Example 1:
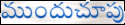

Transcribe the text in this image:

ముందుచూపు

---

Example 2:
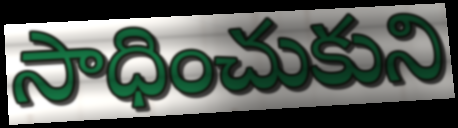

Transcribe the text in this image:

సాధించుకుని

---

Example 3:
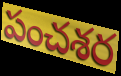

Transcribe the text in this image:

పంచశర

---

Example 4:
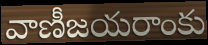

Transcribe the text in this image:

వాణీజయరాంకు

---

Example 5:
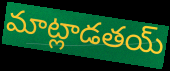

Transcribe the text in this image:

మాట్లాడతయ్